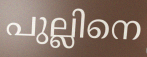
പുല്ലിനെ